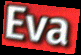
Eva